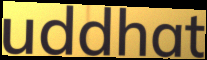
uddhat